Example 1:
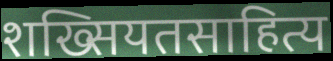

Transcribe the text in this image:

शख्सियतसाहित्य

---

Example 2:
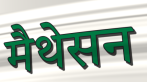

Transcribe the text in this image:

मैथेसन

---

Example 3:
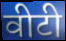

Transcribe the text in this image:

वीटी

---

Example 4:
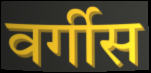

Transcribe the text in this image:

वर्गीस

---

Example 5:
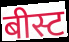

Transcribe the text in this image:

बीस्ट